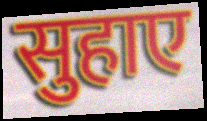
सुहाए